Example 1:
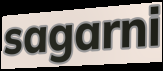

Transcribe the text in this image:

sagarni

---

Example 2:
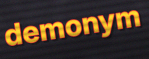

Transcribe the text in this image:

demonym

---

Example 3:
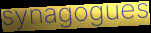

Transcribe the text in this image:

synagogues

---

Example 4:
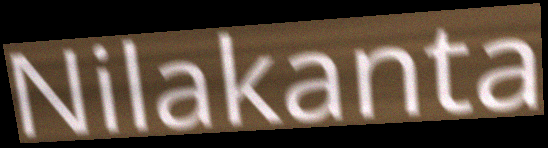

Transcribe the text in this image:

Nilakanta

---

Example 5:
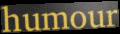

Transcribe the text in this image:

humour